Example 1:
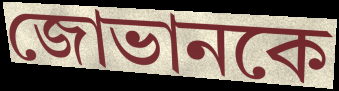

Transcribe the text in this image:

জোভানকে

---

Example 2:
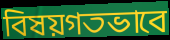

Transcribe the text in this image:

বিষয়গতভাবে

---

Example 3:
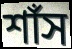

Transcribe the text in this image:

শাঁস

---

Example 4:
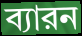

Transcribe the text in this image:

ব্যারন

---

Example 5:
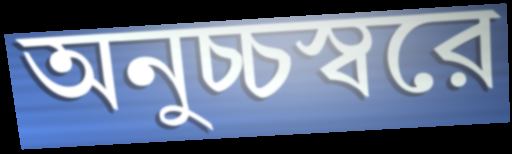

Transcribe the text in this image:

অনুচ্চস্বরে